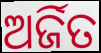
ଅର୍ଜିତ